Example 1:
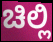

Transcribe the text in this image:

ಚಿಲ್ಲಿ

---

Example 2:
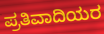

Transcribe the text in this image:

ಪ್ರತಿವಾದಿಯರ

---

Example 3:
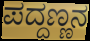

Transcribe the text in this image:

ಪದ್ದಣ್ಣನ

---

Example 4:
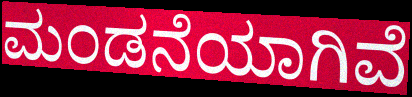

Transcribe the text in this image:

ಮಂಡನೆಯಾಗಿವೆ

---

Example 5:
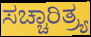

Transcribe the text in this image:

ಸಚ್ಚಾರಿತ್ರ್ಯ